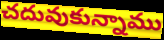
చదువుకున్నాము